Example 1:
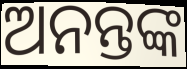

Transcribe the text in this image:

ଅନନ୍ତଙ୍କ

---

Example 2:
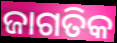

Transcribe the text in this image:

ଜାଗତିକ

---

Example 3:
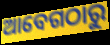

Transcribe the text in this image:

ଆବେଗଠାରୁ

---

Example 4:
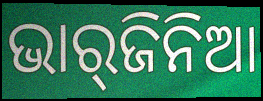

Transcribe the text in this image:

ଭାର୍‌ଜିନିଆ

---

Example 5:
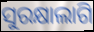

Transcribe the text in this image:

ସୁରକ୍ଷାଲାଗି